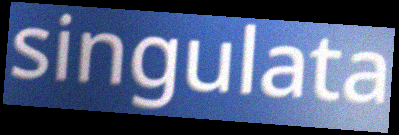
singulata